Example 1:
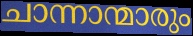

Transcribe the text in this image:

ചാന്നാന്മാരും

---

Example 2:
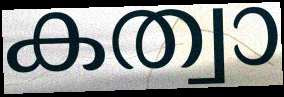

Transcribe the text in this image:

കത്വാ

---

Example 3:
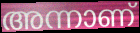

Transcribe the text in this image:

അന്നാണ്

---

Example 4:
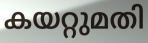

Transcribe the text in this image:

കയറ്റുമതി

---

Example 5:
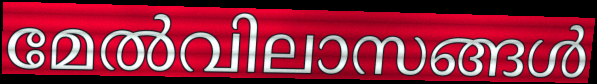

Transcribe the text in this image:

മേൽവിലാസങ്ങൾ